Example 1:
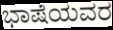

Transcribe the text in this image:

ಭಾಷೆಯವರ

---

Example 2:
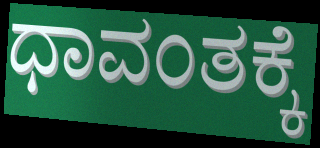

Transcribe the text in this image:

ಧಾವಂತಕ್ಕೆ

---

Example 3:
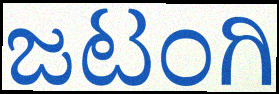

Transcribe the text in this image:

ಜಟಂಗಿ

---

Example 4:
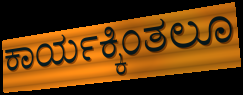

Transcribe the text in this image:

ಕಾರ್ಯಕ್ಕಿಂತಲೂ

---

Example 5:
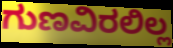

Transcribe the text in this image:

ಗುಣವಿರಲಿಲ್ಲ